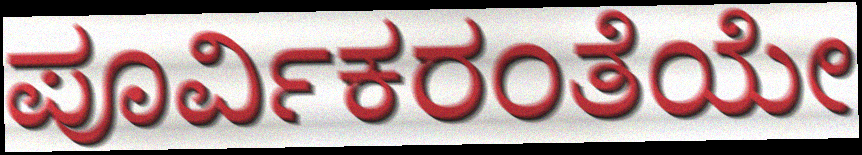
ಪೂರ್ವಿಕರಂತೆಯೇ